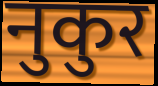
नुकुर